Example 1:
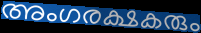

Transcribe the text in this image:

അംഗരക്ഷകരും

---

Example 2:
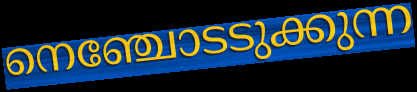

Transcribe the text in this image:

നെഞ്ചോടടുക്കുന്ന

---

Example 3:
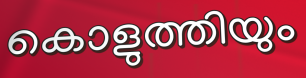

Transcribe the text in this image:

കൊളുത്തിയും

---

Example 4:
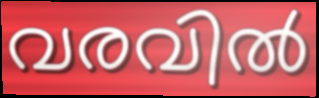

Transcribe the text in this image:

വരവിൽ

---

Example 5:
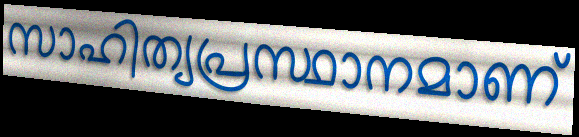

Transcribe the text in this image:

സാഹിത്യപ്രസ്ഥാനമാണ്